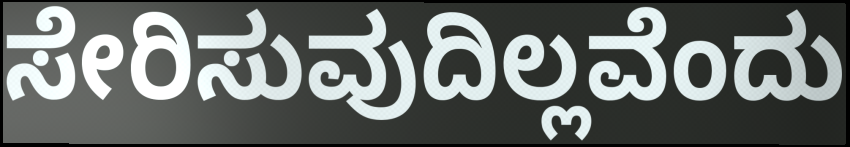
ಸೇರಿಸುವುದಿಲ್ಲವೆಂದು